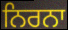
ਨਿਰਨਾ